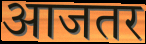
आजतर